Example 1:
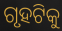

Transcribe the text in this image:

ଗୃହଟିକୁ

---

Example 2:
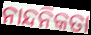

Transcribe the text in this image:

ନାନ୍ଦନିକତା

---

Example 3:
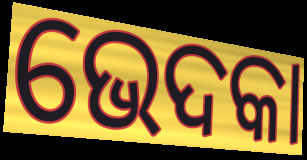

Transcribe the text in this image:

ଭେଦକା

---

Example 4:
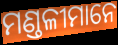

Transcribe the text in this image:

ମଣ୍ଡଳୀମାନେ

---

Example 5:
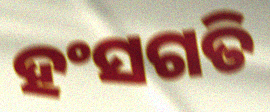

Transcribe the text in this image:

ହଂସଗତି